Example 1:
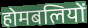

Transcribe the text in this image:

होमबलियों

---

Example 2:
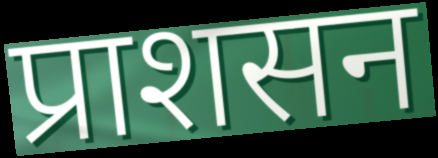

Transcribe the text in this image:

प्राशसन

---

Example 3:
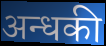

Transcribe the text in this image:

अन्धकी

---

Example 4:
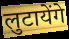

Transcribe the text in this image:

लुटायेंगे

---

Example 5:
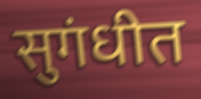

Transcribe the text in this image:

सुगंधीत